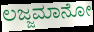
ಲಜ್ಜಮಾನೋ